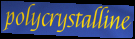
polycrystalline